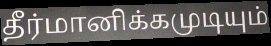
தீர்மானிக்கமுடியும்